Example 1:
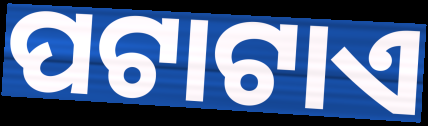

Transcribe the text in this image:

ପଟାଟାଏ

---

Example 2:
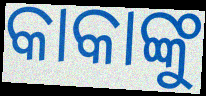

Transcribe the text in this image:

କାକାଙ୍କୁ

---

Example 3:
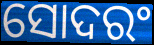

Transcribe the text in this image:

ସୋଦରଂ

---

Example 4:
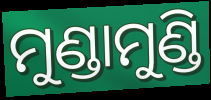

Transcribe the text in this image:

ମୁଣ୍ଡାମୁଣ୍ଡି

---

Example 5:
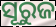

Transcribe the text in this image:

ସୂରୁଜ